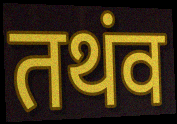
तथंव